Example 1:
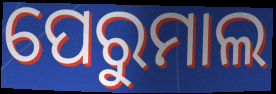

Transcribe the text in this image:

ପେରୁମାଲ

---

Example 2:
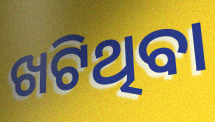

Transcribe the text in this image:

ଖଟିଥିବା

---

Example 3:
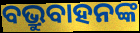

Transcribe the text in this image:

ବଭ୍ରୁବାହନଙ୍କ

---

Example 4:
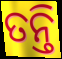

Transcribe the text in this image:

ତନ୍ତି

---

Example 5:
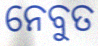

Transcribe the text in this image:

ନେବୁତ